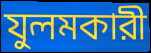
যুলমকারী